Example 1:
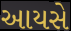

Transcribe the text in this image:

આયસે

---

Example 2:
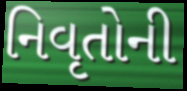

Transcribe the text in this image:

નિવૃતોની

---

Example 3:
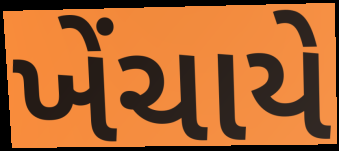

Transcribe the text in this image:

ખેંચાયે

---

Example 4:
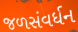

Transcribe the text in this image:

જળસંવર્ધન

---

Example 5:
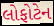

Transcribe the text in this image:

લોફોટેન